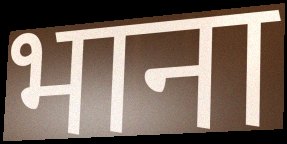
भाना